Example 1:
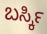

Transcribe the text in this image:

ಬರ್ಸ್ಕಿ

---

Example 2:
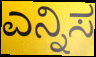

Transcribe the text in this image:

ಎನ್ನಿಸ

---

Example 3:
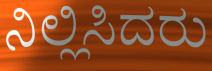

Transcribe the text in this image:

ನಿಲ್ಲಿಸಿದರು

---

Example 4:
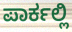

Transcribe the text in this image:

ಪಾರ್ಕಲ್ಲಿ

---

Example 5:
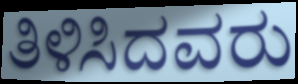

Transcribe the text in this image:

ತಿಳಿಸಿದವರು